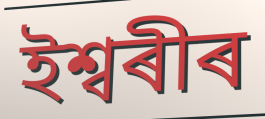
ইশ্বৰীৰ